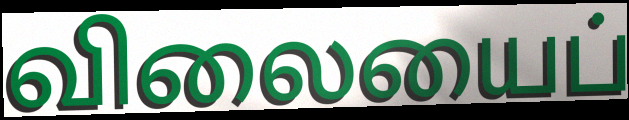
விலையைப்